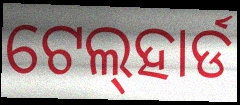
ଟେଲ୍‍ହାର୍ଡ